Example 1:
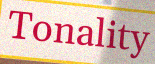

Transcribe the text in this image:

Tonality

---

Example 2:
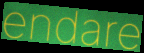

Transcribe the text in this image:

endare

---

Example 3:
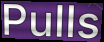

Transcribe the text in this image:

Pulls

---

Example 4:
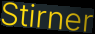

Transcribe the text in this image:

Stirner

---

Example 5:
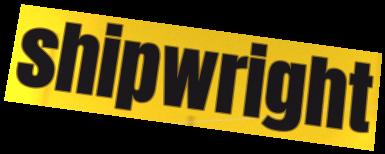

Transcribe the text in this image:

shipwright